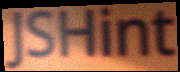
JSHint